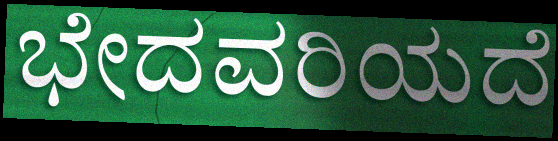
ಭೇದವರಿಯದೆ